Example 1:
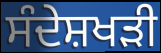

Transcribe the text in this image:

ਸੰਦੇਸ਼ਖੜੀ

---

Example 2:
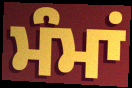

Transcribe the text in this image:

ਮੰਮਾਂ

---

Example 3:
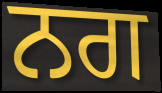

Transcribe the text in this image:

ਨਗ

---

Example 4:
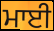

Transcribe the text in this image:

ਮਾਈ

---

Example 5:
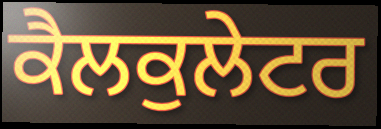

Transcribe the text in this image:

ਕੈਲਕੁਲੇਟਰ